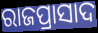
ରାଜପ୍ରାସାଦ